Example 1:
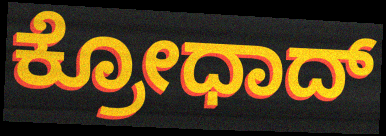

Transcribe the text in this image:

ಕ್ರೋಧಾದ್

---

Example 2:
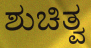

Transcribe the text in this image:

ಶುಚಿತ್ವ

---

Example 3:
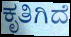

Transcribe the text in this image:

ಕೃತಿಗಿದೆ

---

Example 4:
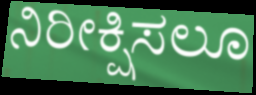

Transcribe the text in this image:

ನಿರೀಕ್ಷಿಸಲೂ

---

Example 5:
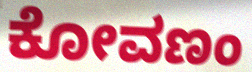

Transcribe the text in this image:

ಕೋವಣಂ